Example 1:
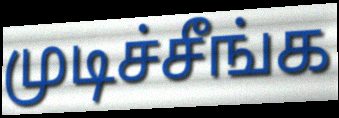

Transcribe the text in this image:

முடிச்சீங்க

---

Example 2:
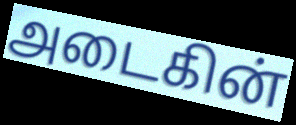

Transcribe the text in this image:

அடைகின்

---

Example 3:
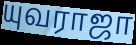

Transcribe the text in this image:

யுவராஜா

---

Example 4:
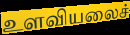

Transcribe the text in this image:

உளவியலைச்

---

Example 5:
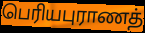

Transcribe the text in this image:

பெரியபுராணத்